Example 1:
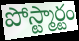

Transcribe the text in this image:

పోస్ట్మార్టం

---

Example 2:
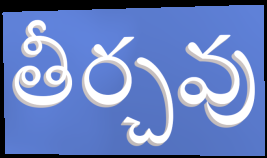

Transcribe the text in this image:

తీర్చవు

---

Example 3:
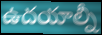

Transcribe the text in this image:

ఉదయాల్నీ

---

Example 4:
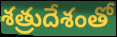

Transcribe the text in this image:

శత్రుదేశంతో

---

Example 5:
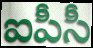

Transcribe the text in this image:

ఐపీసీ